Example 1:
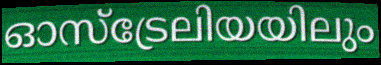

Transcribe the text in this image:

ഓസ്ട്രേലിയയിലും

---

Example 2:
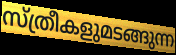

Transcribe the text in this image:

സ്ത്രീകളുമടങ്ങുന്ന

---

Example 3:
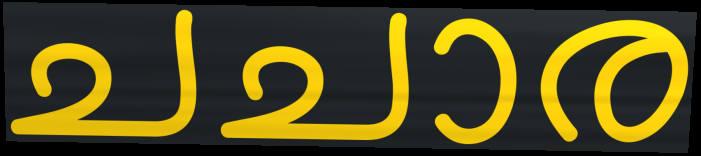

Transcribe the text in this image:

ചചാര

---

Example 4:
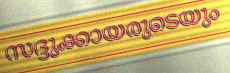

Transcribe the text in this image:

സദ്ദുക്കായരുടെയും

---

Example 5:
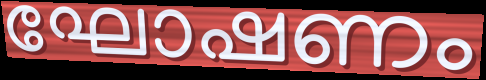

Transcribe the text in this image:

ഘോഷണം